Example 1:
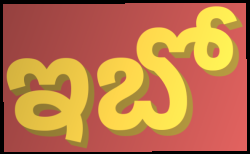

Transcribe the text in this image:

ఇబో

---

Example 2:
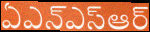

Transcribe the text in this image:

ఏఎన్ఎస్ఆర్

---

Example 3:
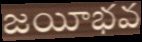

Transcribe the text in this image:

జయీభవ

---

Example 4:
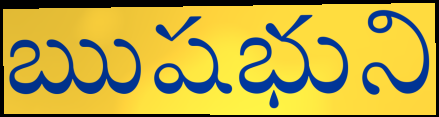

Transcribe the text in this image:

ఋషభుని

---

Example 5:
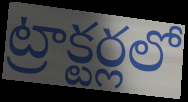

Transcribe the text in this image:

ట్రాక్టర్లలో